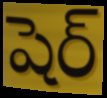
షెర్